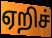
ஏறிச்